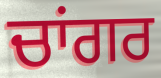
ਚਾਂਗਰ